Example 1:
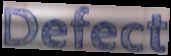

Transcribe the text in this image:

Defect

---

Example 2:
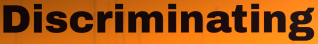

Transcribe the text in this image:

Discriminating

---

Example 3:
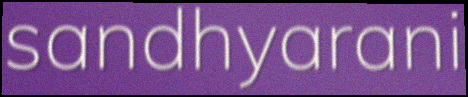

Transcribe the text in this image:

sandhyarani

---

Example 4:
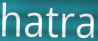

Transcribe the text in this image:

hatra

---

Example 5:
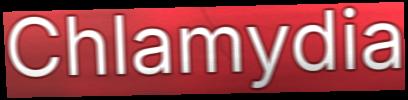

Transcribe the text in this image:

Chlamydia